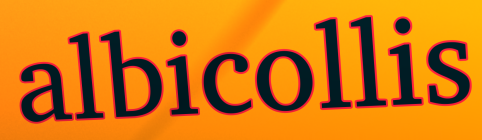
albicollis